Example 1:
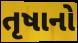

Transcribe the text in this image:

તૃષાનો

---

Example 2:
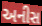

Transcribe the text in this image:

અનીસ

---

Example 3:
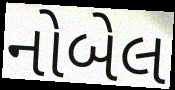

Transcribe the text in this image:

નોબેલ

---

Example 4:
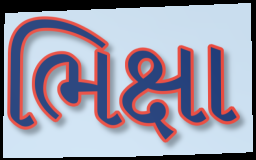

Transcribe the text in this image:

ભિક્ષા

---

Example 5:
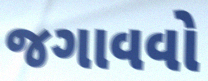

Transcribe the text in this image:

જગાવવો